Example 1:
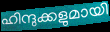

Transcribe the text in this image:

ഹിന്ദുക്കളുമായി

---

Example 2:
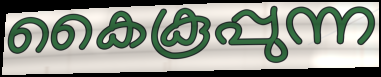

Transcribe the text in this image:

കൈകൂപ്പുന്ന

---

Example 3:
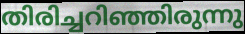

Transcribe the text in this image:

തിരിച്ചറിഞ്ഞിരുന്നു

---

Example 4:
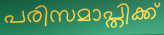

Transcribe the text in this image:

പരിസമാപ്തിക്ക്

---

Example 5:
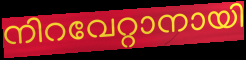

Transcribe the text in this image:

നിറവേറ്റാനായി